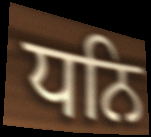
ਧਨਿ